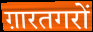
ग़ारतगरों